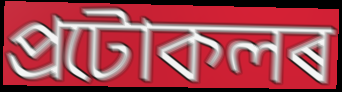
প্ৰটোকলৰ